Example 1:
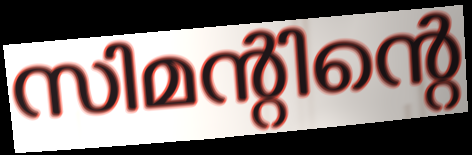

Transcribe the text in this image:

സിമന്റിന്റെ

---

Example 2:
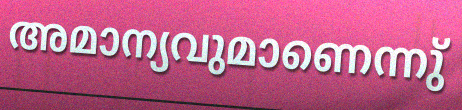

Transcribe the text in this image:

അമാന്യവുമാണെന്നു്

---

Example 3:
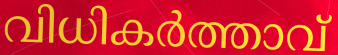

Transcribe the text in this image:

വിധികർത്താവ്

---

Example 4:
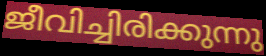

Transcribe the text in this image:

ജീവിച്ചിരിക്കുന്നു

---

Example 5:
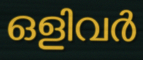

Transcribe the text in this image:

ഒളിവർ